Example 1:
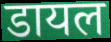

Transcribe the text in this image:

डायल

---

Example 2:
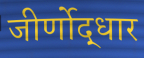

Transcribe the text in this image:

जीर्णोद्धार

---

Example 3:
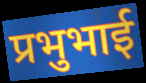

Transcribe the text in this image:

प्रभुभाई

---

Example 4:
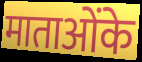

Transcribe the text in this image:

माताओंके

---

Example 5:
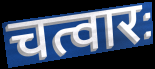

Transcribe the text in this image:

चत्वारः